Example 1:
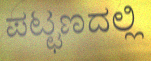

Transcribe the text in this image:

ಪಟ್ಟಣದಲ್ಲಿ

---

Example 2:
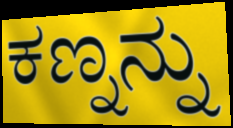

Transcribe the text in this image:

ಕಣ್ನನ್ನು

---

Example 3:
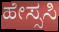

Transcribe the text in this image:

ಹೇಸ್ಸಸಿ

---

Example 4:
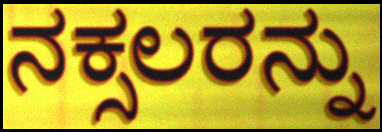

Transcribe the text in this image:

ನಕ್ಸಲರನ್ನು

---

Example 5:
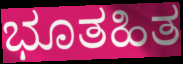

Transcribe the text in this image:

ಭೂತಹಿತ